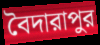
বৈদারাপুর